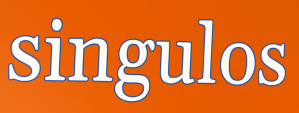
singulos